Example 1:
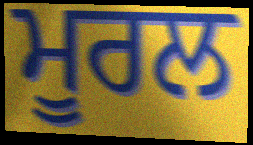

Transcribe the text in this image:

ਮੂਰਲ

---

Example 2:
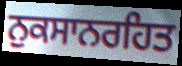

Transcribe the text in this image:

ਨੁਕਸਾਨਰਹਿਤ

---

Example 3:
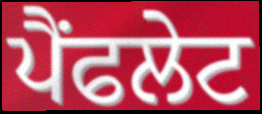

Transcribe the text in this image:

ਪੈਂਫਲੇਟ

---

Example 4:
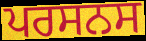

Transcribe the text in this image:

ਪਰਸਨਸ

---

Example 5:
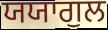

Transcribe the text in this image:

ਯਯਾਗੁਲ